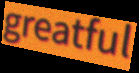
greatful